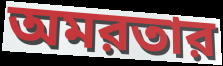
অমরতার